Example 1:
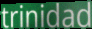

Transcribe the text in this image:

trinidad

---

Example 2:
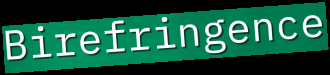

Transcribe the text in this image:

Birefringence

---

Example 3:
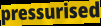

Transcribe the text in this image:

pressurised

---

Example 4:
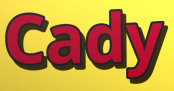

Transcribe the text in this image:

Cady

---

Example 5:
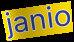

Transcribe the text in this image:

janio